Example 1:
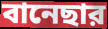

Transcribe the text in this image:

বানেছার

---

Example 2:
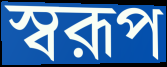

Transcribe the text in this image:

স্বরূপ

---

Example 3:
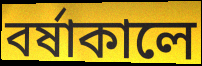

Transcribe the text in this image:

বর্ষাকালে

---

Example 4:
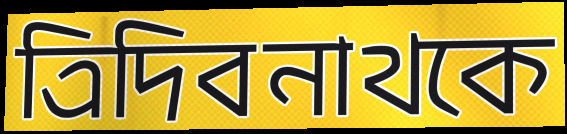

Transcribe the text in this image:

ত্রিদিবনাথকে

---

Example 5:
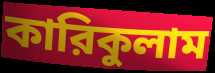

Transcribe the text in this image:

কারিকুলাম